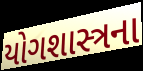
યોગશાસ્ત્રના